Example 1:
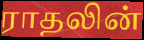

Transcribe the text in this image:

ராதலின்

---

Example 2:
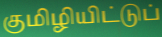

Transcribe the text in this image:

குமிழியிட்டுப்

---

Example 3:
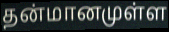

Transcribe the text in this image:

தன்மானமுள்ள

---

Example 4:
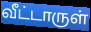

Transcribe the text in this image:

வீட்டாருள்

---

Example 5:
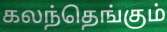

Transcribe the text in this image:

கலந்தெங்கும்